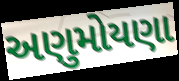
અણુમોયણા